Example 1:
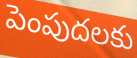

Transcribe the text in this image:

పెంపుదలకు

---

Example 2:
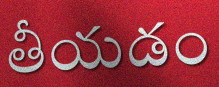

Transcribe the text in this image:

తీయడం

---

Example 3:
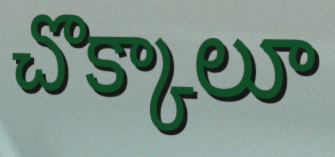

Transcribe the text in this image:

చొక్కాలూ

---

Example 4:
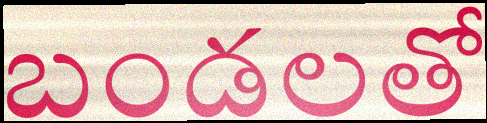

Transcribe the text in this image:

బండలతో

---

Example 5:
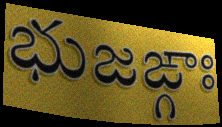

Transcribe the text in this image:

భుజఙ్గాః